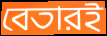
বেতারই